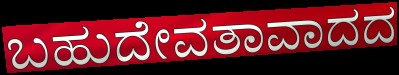
ಬಹುದೇವತಾವಾದದ